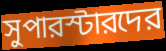
সুপারস্টারদের